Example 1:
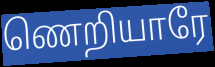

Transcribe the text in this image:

ணெறியாரே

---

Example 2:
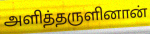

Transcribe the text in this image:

அளித்தருளினான்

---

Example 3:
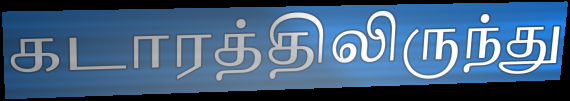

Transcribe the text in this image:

கடாரத்திலிருந்து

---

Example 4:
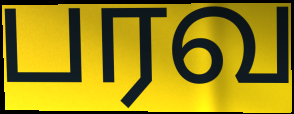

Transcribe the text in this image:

பரவ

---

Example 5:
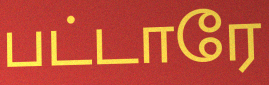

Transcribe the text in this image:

பட்டாரே